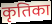
कृतिका